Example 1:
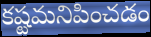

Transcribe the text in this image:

కష్టమనిపించడం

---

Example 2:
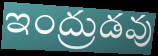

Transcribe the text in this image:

ఇంద్రుడవు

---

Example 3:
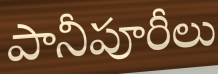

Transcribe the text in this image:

పానీపూరీలు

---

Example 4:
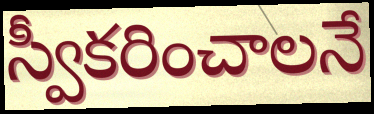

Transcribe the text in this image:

స్వీకరించాలనే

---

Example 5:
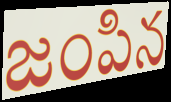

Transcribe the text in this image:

జంపిన